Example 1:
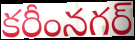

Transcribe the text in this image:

కరీంనగర్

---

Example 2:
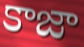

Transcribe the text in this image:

కాజా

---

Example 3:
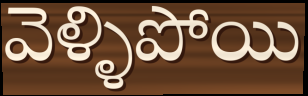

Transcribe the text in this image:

వెళ్ళిపోయి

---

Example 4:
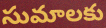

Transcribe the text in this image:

సుమాలకు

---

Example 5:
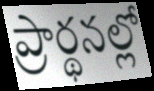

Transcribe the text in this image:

ప్రార్థనల్లో